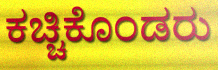
ಕಚ್ಚಿಕೊಂಡರು